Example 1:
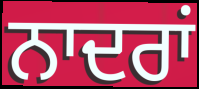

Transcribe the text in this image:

ਨਾਦਰਾਂ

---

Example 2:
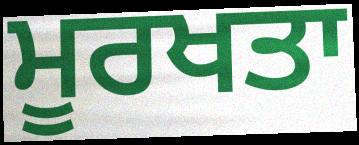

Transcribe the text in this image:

ਮੂਰਖਤਾ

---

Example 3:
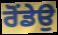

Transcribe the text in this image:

ਰੋਂਡੇਉ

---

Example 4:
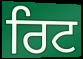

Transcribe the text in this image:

ਰਿਟ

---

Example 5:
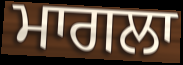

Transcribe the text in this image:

ਮਾਗਲਾ